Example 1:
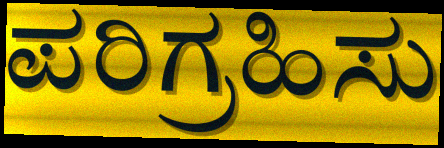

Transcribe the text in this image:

ಪರಿಗ್ರಹಿಸು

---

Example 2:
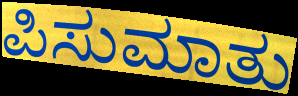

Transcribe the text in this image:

ಪಿಸುಮಾತು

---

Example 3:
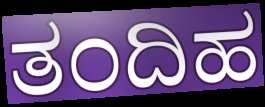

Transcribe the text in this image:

ತಂದಿಹ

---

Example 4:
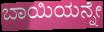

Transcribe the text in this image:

ಬಾಯಿಯನ್ನೇ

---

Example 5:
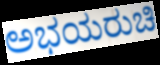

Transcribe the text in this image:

ಅಭಯರುಚಿ